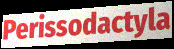
Perissodactyla